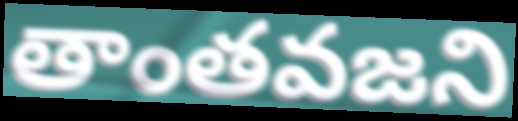
తాంతవజని